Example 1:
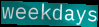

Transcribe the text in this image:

weekdays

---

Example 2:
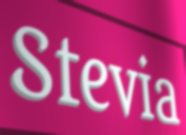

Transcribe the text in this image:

Stevia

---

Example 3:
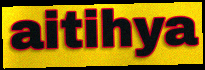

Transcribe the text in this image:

aitihya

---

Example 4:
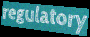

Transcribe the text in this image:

regulatory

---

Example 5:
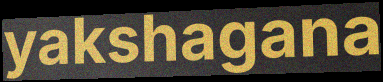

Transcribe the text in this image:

yakshagana